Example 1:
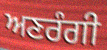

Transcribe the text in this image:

ਅਣਰੰਗੀ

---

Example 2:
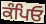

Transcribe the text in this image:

ਕੰਪਿਓ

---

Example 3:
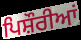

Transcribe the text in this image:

ਪਿਸ਼ੌਰੀਆਂ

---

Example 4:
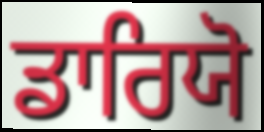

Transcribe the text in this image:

ਡਾਰਿਯੋ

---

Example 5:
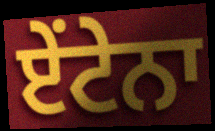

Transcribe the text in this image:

ਏਂਟੇਨਾ